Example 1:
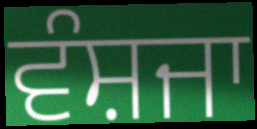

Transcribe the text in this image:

ਵੰਸ਼ਜਾ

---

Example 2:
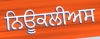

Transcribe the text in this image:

ਨਿਊਕਲੀਅਸ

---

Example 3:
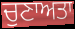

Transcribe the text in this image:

ਚੁਣਾਅਤਾ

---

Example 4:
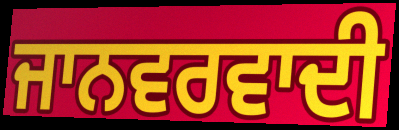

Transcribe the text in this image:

ਜਾਨਵਰਵਾਦੀ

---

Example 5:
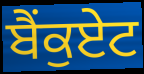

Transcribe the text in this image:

ਬੈਂਕੁਏਟ